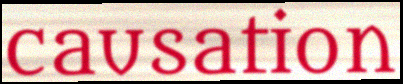
causation